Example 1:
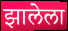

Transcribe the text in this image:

झालेला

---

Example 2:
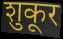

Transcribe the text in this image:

शुकूर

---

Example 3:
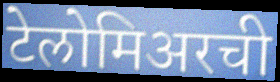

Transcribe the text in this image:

टेलोमिअरची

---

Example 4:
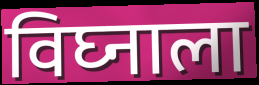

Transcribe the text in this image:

विघ्नाला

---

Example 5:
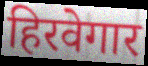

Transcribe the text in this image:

हिरवेगार